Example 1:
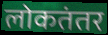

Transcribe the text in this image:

लोकतंतर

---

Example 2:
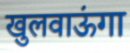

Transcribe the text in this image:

खुलवाऊंगा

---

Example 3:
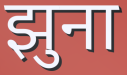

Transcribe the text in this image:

झुना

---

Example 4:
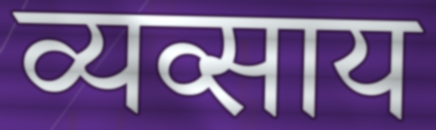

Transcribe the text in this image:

व्यव्साय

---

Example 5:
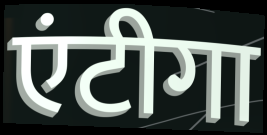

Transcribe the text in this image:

एंटीगा